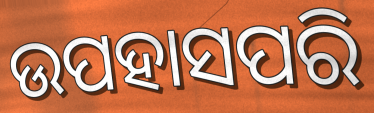
ଉପହାସପରି